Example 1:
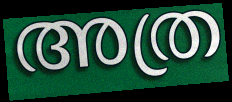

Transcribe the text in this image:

അത്ര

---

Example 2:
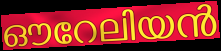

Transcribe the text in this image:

ഔറേലിയൻ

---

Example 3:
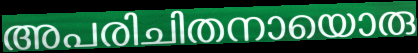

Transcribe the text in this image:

അപരിചിതനായൊരു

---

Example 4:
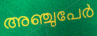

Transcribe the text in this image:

അഞ്ചുപേർ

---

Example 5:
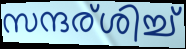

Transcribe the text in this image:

സന്ദര്ശിച്ച്